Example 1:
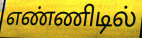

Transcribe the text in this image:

எண்ணிடில்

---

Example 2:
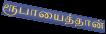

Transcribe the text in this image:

ரூபாயைத்தான்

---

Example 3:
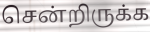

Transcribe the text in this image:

சென்றிருக்க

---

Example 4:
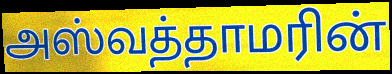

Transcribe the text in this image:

அஸ்வத்தாமரின்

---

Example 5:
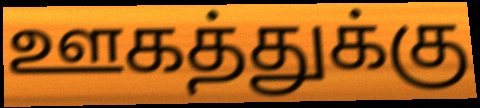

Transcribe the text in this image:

ஊகத்துக்கு